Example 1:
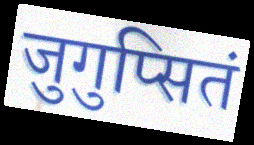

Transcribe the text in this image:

जुगुप्सितं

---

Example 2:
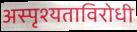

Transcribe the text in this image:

अस्पृश्यताविरोधी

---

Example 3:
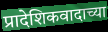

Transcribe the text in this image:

प्रादेशिकवादाच्या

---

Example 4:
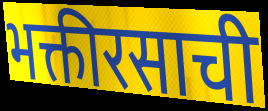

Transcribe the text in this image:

भक्तीरसाची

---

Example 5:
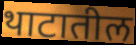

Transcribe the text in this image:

थाटातील